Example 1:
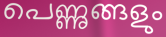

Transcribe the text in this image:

പെണ്ണുങ്ങളും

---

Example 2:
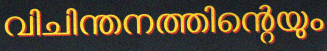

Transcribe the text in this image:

വിചിന്തനത്തിന്റെയും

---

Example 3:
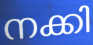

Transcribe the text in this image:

നക്കി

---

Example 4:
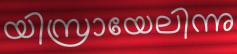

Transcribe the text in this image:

യിസ്രായേലിന്നു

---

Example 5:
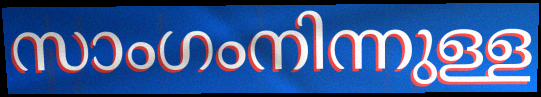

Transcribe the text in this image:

സാംഗംനിന്നുള്ള